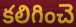
కలిగించె